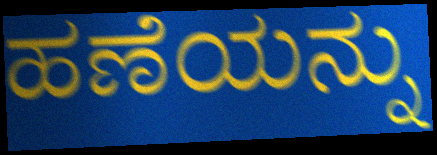
ಹಣೆಯನ್ನು